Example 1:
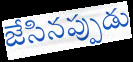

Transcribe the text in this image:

జేసినప్పుడు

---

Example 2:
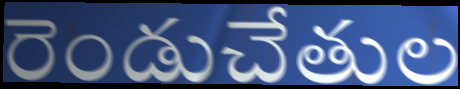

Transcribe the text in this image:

రెండుచేతుల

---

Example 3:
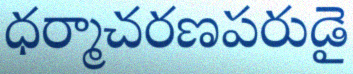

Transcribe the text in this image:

ధర్మాచరణపరుడై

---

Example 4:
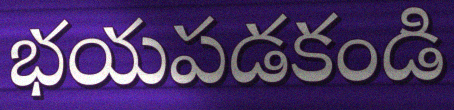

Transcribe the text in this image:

భయపడకండి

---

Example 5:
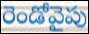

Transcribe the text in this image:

రెండోవైపు